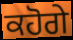
ਕਹੋਗੇ